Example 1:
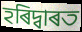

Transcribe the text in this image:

হৰিদ্বাৰত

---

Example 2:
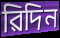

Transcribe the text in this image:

ৱিদিন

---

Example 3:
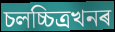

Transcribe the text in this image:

চলচ্চিত্ৰখনৰ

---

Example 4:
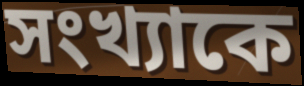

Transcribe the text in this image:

সংখ্যাকে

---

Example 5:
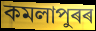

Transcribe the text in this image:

কমলাপুৰৰ